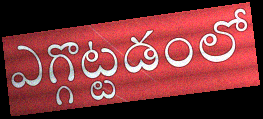
ఎగ్గొట్టడంలో